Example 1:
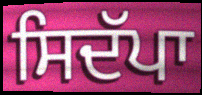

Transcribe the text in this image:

ਸਿਦੱਪਾ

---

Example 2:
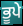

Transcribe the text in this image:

ਭੂਪੇ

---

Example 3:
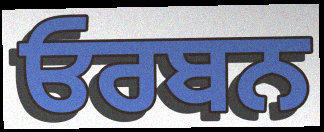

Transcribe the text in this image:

ਓਰਬਨ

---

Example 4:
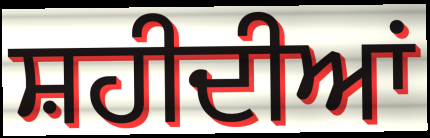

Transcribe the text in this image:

ਸ਼ਹੀਦੀਆਂ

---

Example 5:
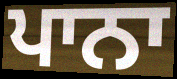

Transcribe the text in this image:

ਪਾਨਾ